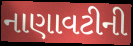
નાણાવટીની